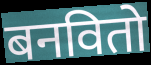
बनवितो